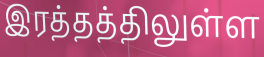
இரத்தத்திலுள்ள